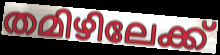
തമിഴിലേക്ക്